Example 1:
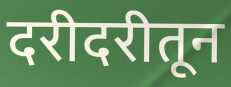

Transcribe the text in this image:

दरीदरीतून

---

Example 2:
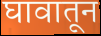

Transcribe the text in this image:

घावातून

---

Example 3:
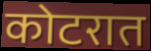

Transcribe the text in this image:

कोटरात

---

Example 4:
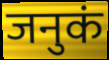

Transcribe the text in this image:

जनुकं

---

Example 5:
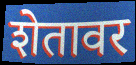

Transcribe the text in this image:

शेतावर